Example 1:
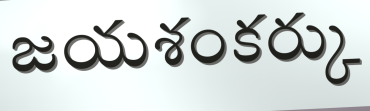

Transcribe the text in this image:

జయశంకర్కు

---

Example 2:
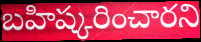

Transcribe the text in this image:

బహిష్కరించారని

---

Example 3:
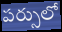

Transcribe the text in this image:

పర్సులో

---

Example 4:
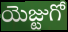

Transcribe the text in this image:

యెజ్టుగో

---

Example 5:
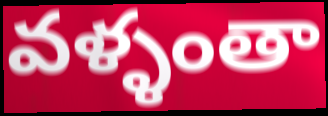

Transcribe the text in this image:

వళ్ళంతా